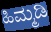
ಹಿಮ್ಮಡಿ